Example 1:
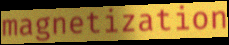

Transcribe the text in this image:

magnetization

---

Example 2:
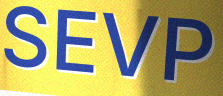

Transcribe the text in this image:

SEVP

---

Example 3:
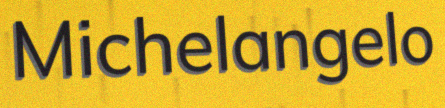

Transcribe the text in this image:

Michelangelo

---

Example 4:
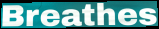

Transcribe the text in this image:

Breathes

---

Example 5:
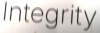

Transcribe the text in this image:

Integrity